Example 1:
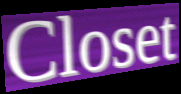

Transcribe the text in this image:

Closet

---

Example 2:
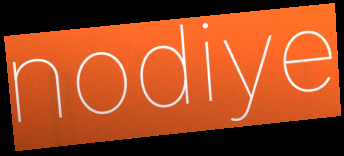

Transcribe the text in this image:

nodiye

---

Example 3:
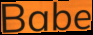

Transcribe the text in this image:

Babe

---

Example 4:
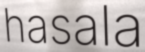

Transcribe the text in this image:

hasala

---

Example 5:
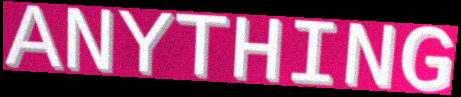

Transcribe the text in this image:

ANYTHING